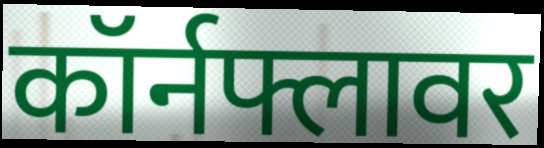
कॉर्नफ्लावर